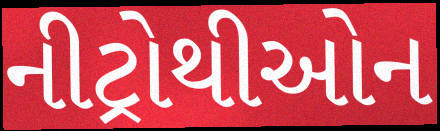
નીટ્રોથીઓન